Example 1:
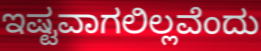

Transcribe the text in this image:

ಇಷ್ಟವಾಗಲಿಲ್ಲವೆಂದು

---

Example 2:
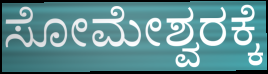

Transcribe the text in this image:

ಸೋಮೇಶ್ವರಕ್ಕೆ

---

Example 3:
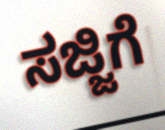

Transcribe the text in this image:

ಸಜ್ಜಿಗೆ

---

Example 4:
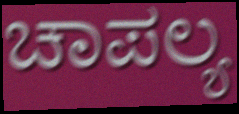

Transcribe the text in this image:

ಚಾಪಲ್ಯ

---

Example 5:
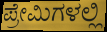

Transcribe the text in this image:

ಪ್ರೇಮಿಗಳಲ್ಲಿ